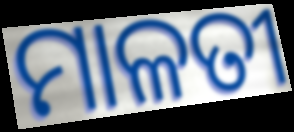
ମାଳତୀ